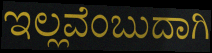
ಇಲ್ಲವೆಂಬುದಾಗಿ